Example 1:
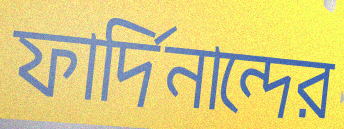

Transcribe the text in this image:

ফার্দিনান্দের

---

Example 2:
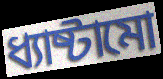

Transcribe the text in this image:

ধ্যাষ্টামো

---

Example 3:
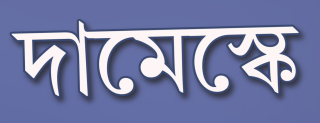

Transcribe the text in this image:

দামেস্কে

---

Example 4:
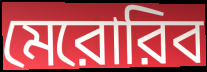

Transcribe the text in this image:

মেরোরিব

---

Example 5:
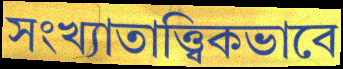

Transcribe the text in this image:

সংখ্যাতাত্ত্বিকভাবে